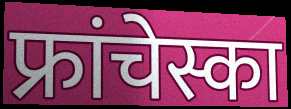
फ्रांचेस्का